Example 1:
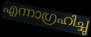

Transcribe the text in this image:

എന്നാഗ്രഹിച്ചു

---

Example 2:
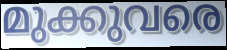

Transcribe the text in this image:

മുക്കുവരെ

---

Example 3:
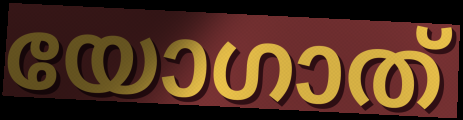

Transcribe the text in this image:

യോഗാത്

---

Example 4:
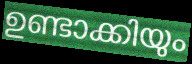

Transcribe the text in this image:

ഉണ്ടാക്കിയും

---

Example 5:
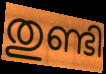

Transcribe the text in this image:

തുണ്ടി